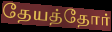
தேயத்தோர்